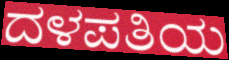
ದಳಪತಿಯ